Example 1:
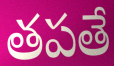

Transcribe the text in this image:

తపతే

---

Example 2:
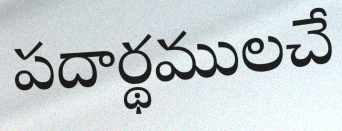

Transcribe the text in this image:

పదార్థములచే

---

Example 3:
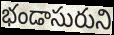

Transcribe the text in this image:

భండాసురుని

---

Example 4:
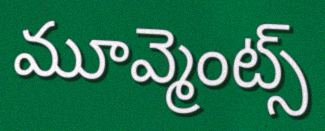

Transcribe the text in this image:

మూవ్మెంట్స్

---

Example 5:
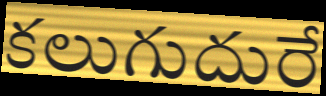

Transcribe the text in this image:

కలుగుదురే